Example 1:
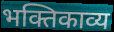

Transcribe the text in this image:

भक्तिकाव्य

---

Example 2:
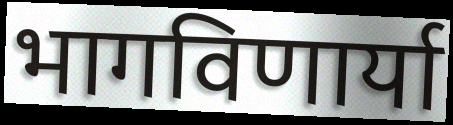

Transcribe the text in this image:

भागविणार्या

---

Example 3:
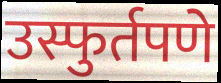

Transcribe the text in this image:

उस्फुर्तपणे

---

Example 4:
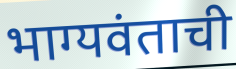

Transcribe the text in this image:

भाग्यवंताची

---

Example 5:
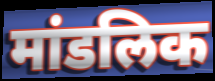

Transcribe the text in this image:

मांडलिक